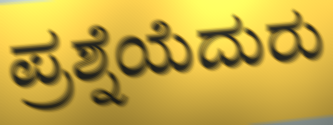
ಪ್ರಶ್ನೆಯೆದುರು